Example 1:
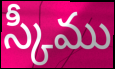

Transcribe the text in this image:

స్కీము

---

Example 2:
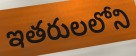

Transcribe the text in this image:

ఇతరులలోని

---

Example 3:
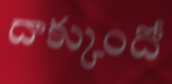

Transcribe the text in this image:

దాక్కుందో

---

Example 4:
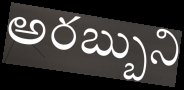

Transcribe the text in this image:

అరబ్బుని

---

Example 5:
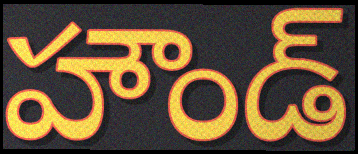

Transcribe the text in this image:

హౌండ్